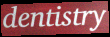
dentistry